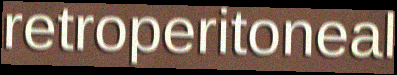
retroperitoneal